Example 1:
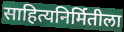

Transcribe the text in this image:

साहित्यनिर्मितीला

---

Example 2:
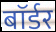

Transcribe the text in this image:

बॉर्डर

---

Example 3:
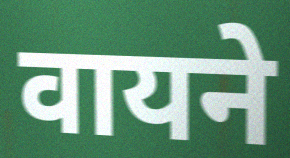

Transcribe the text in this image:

वायने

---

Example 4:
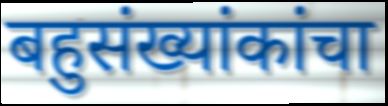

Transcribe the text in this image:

बहुसंख्यांकांचा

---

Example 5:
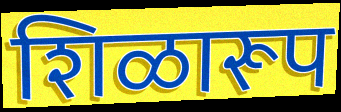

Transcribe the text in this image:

शिळारूप